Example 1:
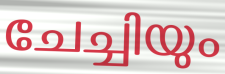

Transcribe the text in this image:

ചേച്ചിയും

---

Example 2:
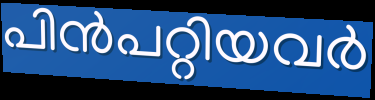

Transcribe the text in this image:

പിൻപറ്റിയവർ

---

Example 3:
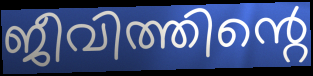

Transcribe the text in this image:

ജീവിത്തിന്റെ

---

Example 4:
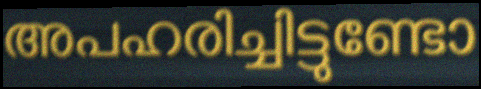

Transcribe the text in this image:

അപഹരിച്ചിട്ടുണ്ടോ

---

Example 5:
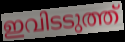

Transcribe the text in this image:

ഇവിടടുത്ത്